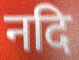
नदि